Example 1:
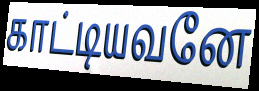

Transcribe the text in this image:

காட்டியவனே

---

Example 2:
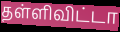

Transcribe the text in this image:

தள்ளிவிட்டா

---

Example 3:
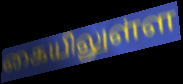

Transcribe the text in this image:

கையிலுள்ள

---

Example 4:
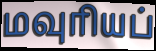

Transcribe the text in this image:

மவுரியப்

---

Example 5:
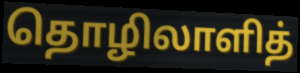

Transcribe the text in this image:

தொழிலாளித்